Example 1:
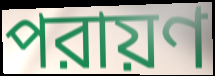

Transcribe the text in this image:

পরায়ণ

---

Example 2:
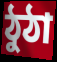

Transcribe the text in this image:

ঠুঠা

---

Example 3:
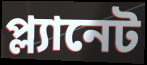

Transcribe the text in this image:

প্ল্যানেট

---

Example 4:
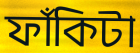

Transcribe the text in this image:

ফাঁকিটা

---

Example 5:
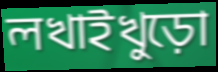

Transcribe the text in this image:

লখাইখুড়ো